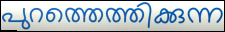
പുറത്തെത്തിക്കുന്ന